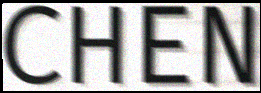
CHEN